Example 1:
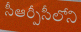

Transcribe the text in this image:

సీఆర్పీసీలోని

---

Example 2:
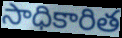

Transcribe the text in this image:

సాధికారిత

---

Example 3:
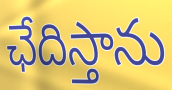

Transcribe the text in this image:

ఛేదిస్తాను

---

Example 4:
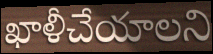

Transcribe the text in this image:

ఖాళీచేయాలని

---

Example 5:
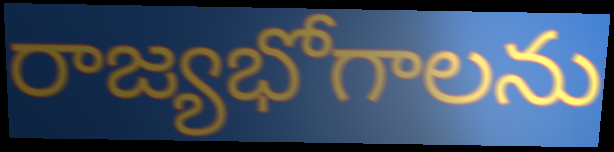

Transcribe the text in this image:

రాజ్యభోగాలను